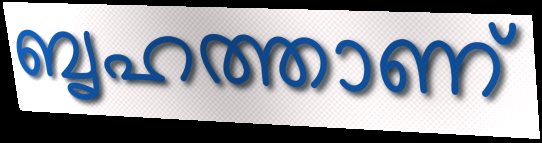
ബൃഹത്താണ്